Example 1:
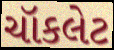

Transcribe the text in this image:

ચૉકલેટ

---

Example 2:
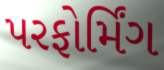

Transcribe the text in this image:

પરફોર્મિંગ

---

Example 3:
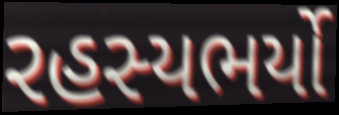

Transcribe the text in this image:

રહસ્યભર્યો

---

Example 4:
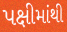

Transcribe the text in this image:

પક્ષીમાંથી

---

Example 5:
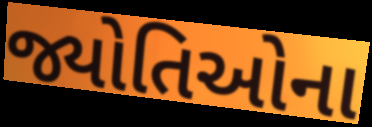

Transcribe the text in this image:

જ્યોતિઓના